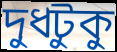
দুধটুকু